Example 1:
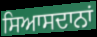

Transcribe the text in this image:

ਸਿਆਸਦਾਨਾਂ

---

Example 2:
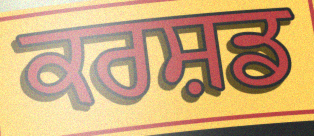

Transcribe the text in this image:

ਕਰਸ਼ਡ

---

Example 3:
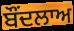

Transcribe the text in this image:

ਬੌਂਦਲਾਅ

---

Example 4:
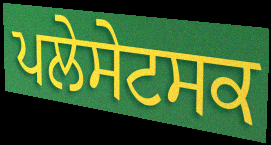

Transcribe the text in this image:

ਪਲੇਸੇਟਸਕ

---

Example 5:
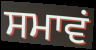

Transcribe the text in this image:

ਸਮਾਵਂ